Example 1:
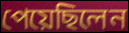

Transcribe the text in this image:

পেয়েছিলেন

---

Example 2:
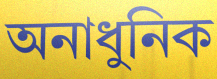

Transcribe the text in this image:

অনাধুনিক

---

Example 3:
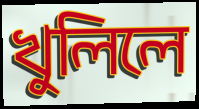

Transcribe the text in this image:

খুলিলে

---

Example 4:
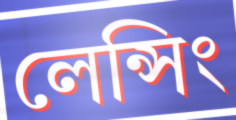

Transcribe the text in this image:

লেন্সিং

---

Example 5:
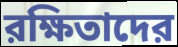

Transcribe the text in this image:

রক্ষিতাদের